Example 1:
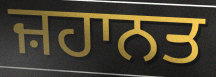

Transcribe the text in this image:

ਜ਼ਹਾਨਤ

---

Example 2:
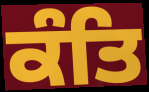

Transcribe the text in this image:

ਕੰਤਿ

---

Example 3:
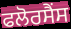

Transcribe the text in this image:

ਫਲੋਰਸੈਂਸ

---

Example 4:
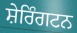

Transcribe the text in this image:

ਸ਼ੇਰਿੰਗਟਨ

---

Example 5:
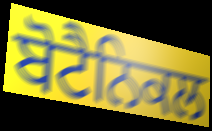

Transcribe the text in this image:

ਬੋਟੈਨਿਕਲ